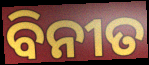
ବିନୀତ